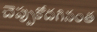
చెప్పుకోదగినంత